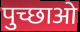
पुच्छाओ